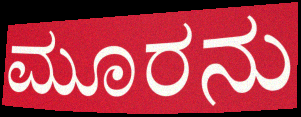
ಮೂರನು